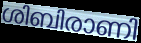
ശിബിരാണി